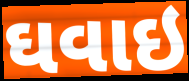
ઘવાઇ